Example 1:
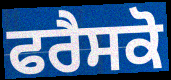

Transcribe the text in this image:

ਫਰੈਸਕੋ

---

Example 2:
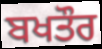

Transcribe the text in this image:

ਬਖਤੌਰ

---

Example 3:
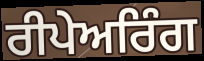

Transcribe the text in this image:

ਰੀਪੇਅਰਿੰਗ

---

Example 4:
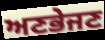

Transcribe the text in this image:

ਅਣਭੇਜਣ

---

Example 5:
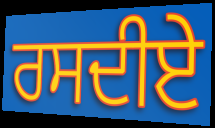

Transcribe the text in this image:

ਰਸਦੀਏ